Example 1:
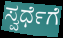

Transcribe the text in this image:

ಸ್ವರ್ಧೆಗೆ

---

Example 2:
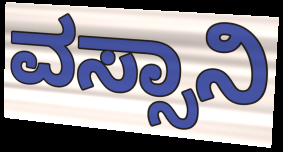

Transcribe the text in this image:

ವಸ್ಸಾನಿ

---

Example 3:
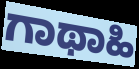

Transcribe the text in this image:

ಗಾಥಾಹಿ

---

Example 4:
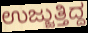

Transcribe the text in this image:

ಉಜ್ಜುತ್ತಿದ್ದ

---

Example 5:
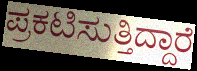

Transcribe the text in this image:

ಪ್ರಕಟಿಸುತ್ತಿದ್ದಾರೆ